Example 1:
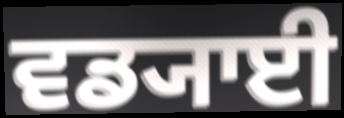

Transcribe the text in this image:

ਵਡ੍ਯਾਈ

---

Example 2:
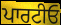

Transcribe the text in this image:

ਪਾਰਟੀਓ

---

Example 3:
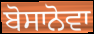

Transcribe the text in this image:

ਬੋਸਾਨੋਵਾ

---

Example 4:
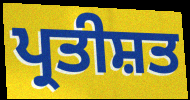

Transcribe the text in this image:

ਪ੍ਰਤੀਸ਼ਤ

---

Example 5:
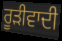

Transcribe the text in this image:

ਰੂੜੀਵਾਦੀ